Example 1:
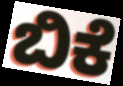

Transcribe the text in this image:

ಬಿಕೆ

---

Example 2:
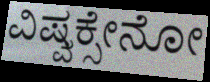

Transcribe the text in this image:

ವಿಷ್ವಕ್ಸೇನೋ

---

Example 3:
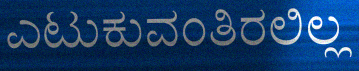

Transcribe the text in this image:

ಎಟುಕುವಂತಿರಲಿಲ್ಲ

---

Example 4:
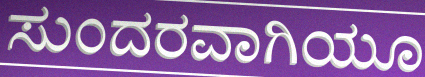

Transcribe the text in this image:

ಸುಂದರವಾಗಿಯೂ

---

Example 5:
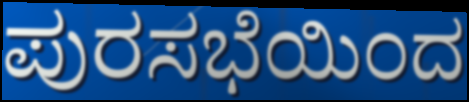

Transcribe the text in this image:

ಪುರಸಭೆಯಿಂದ